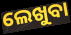
ଲେଖୁବା